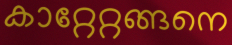
കാറ്റേറ്റങ്ങനെ